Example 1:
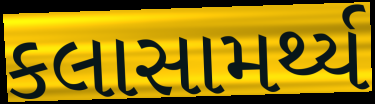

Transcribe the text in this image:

કલાસામર્થ્ય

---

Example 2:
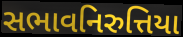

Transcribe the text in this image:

સભાવનિરુત્તિયા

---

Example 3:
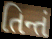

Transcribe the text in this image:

તિન્તં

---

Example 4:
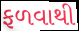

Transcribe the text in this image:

ફળવાથી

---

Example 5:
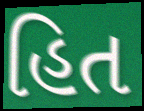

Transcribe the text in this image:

હિત